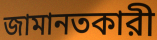
জামানতকারী